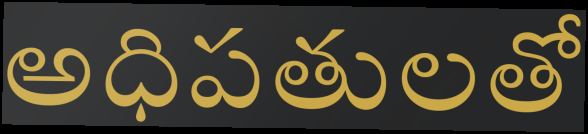
అధిపతులతో